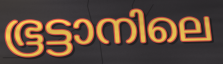
ഭൂട്ടാനിലെ